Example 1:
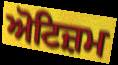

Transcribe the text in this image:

ਅੋਟਿਜ਼ਮ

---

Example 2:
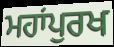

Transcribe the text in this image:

ਮਹਾਂਪੁਰਖ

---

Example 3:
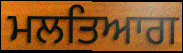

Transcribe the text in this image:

ਮਲਤਿਆਗ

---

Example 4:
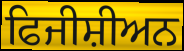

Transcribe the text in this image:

ਫਿਜੀਸ਼ੀਅਨ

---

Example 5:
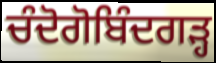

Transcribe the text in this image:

ਚੰਦੋਗੋਬਿੰਦਗੜ੍ਹ